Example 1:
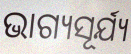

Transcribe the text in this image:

ଭାଗ୍ୟସୂର୍ଯ୍ୟ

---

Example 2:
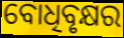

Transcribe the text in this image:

ବୋଧିବୃକ୍ଷର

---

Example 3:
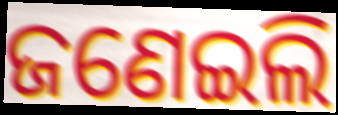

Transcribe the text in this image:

ଜଣେଇଲି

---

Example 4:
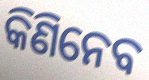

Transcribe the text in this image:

କିଣିନେବ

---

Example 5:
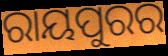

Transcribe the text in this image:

ରାୟପୁରର